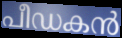
പീഡകൻ